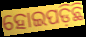
ହୋଇପଡ଼ିଛି